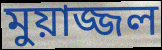
মুয়াজ্জল